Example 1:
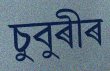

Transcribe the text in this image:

চুবুৰীৰ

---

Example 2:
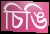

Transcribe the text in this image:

চিঙি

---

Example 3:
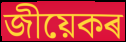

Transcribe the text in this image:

জীয়েকৰ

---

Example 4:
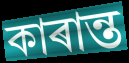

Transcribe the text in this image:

কাৰান্ত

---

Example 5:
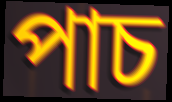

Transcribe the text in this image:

পাচ